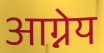
आग्नेय